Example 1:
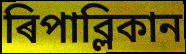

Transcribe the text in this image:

ৰিপাব্লিকান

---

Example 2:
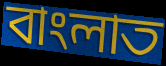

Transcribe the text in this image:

বাংলাত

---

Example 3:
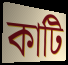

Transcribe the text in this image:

কাটি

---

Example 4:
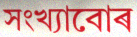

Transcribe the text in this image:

সংখ্যাবোৰ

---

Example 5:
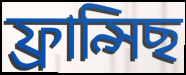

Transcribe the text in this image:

ফ্ৰান্সিছ